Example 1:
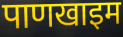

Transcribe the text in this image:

पाणखाइम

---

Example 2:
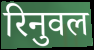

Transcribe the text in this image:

रिनुवल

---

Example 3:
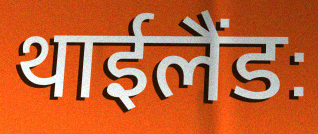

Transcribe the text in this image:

थाईलैंडः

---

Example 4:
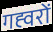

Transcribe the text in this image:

गह्वरों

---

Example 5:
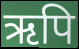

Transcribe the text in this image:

ऋपि